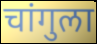
चांगुला